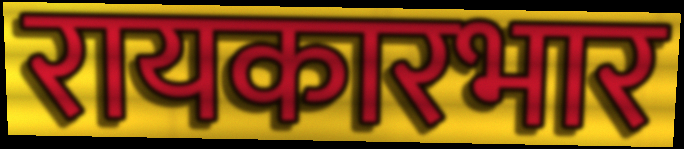
रायकारभार